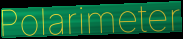
Polarimeter